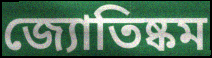
জ্যোতিষ্কম